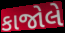
કાજોલે